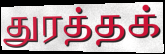
துரத்தக்